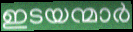
ഇടയന്മാർ